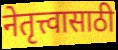
नेतृत्त्वासाठी